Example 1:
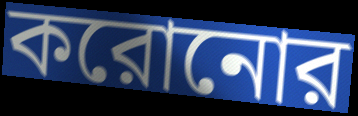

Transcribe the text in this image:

করোনোর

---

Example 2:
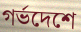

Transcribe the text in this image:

গর্ভদেশে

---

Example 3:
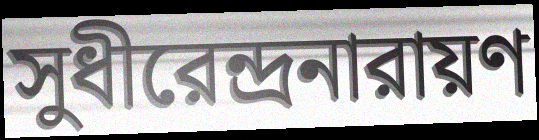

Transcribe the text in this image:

সুধীরেন্দ্রনারায়ণ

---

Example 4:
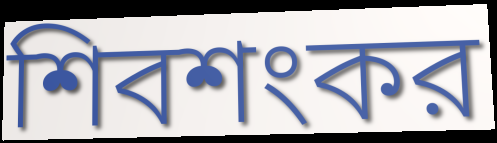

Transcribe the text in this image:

শিবশংকর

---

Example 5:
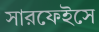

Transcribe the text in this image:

সারফেইসে